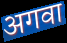
अगवा